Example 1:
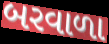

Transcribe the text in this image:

બરવાળા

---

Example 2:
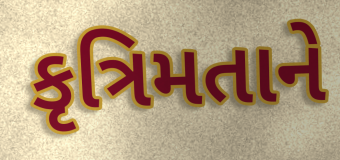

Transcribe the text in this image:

કૃત્રિમતાને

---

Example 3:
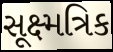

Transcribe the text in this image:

સૂક્ષ્મત્રિક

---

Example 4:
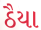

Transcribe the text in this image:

ઠૈયા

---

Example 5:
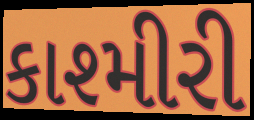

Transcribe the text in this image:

કાશ્મીરી